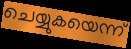
ചെയ്യുകയെന്ന്